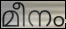
മീനം